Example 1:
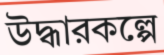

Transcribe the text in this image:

উদ্ধারকল্পে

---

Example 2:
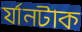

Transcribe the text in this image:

র্যানটাক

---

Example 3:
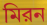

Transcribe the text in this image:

মিরন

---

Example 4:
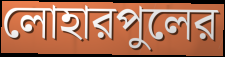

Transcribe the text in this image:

লোহারপুলের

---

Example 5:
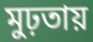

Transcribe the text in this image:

মুঢ়তায়